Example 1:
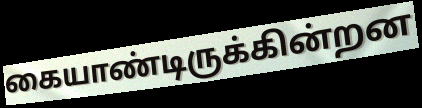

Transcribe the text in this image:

கையாண்டிருக்கின்றன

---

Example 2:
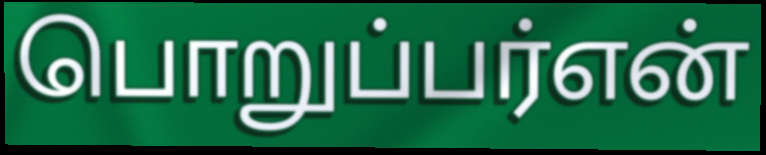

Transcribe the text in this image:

பொறுப்பர்என்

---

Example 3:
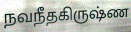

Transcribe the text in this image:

நவநீதகிருஷ்ண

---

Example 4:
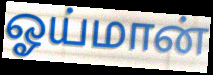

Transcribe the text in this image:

ஓய்மான்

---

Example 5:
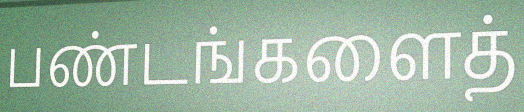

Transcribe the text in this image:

பண்டங்களைத்